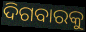
ଦିଗବାରକୁ